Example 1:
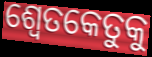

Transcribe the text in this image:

ଶ୍ୱେତକେତୁକୁ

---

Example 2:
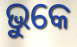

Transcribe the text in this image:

ଭୁକେ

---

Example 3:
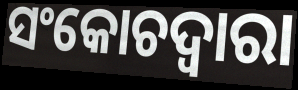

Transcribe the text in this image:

ସଂକୋଚଦ୍ୱାରା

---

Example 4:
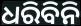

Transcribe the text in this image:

ଧରିବିନି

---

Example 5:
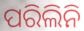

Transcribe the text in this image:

ପରିଲିନି